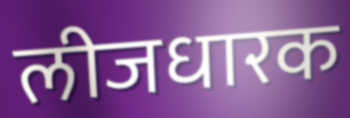
लीजधारक